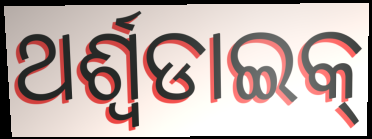
ଥର୍ଶ୍ଵଡାଇକ୍